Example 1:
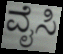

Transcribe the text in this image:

ವೈಸಿ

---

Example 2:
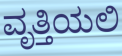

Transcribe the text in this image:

ವೃತ್ತಿಯಲಿ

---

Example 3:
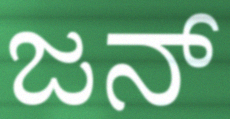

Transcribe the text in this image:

ಜನ್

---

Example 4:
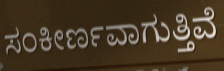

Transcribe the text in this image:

ಸಂಕೀರ್ಣವಾಗುತ್ತಿವೆ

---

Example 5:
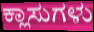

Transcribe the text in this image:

ಕ್ಲಾಸುಗಳು